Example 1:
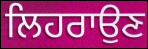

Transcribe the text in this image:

ਲਿਹਰਾਉਣ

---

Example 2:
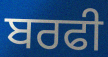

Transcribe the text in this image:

ਬਰਫੀ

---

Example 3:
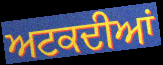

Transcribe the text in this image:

ਅਟਕਦੀਆਂ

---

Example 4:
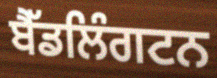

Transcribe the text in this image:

ਬੈੱਡਲਿੰਗਟਨ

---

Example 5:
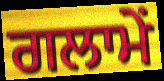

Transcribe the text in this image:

ਗਲਾਮੇਂ